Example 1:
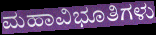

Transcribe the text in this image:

ಮಹಾವಿಭೂತಿಗಳು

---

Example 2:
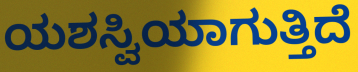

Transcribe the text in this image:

ಯಶಸ್ವಿಯಾಗುತ್ತಿದೆ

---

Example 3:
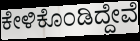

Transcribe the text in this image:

ಕೇಳಿಕೊಂಡಿದ್ದೇವೆ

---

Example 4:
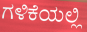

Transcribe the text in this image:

ಗಳಿಕೆಯಲ್ಲಿ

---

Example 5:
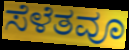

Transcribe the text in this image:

ಸೆಳೆತವೂ